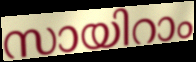
സായിറാം